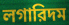
লগারিদম